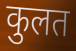
कुलत